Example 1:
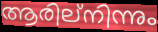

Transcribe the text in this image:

ആരില്നിന്നും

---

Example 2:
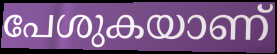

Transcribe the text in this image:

പേശുകയാണ്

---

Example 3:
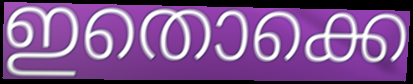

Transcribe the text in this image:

ഇതൊക്കെ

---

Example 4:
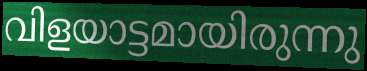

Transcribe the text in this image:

വിളയാട്ടമായിരുന്നു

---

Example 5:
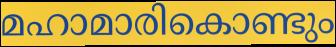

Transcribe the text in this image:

മഹാമാരികൊണ്ടും